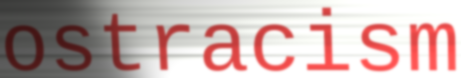
ostracism